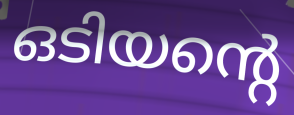
ഒടിയന്റെ